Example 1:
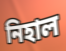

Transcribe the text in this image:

নিহাল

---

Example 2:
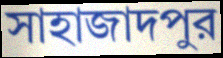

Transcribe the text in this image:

সাহাজাদপুর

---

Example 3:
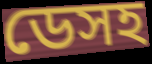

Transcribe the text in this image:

ডেসহ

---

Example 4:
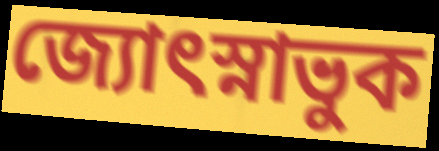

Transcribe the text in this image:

জ্যোৎস্নাভুক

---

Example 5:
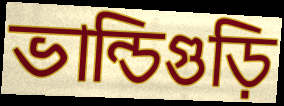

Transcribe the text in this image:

ভান্ডিগুড়ি